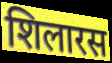
शिलारस